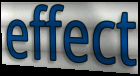
effect